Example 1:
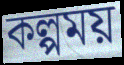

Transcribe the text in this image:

কল্পময়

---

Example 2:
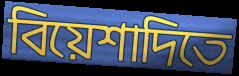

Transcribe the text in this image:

বিয়েশাদিতে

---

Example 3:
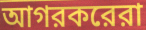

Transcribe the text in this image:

আগরকরেরা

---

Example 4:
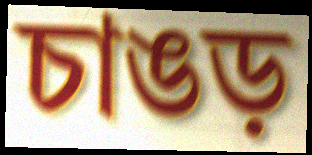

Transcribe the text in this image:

চাঙড়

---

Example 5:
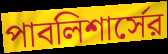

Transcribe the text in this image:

পাবলিশার্সের